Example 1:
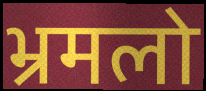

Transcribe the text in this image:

भ्रमलो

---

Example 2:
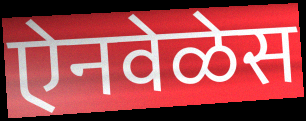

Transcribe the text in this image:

ऐनवेळेस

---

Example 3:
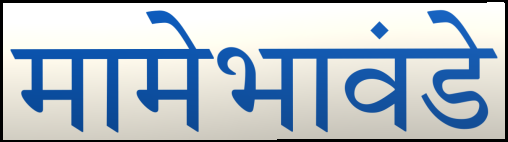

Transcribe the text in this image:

मामेभावंडे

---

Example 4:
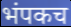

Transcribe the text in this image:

भंपकच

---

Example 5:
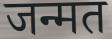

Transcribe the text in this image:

जन्मत